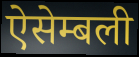
ऐसेम्बली